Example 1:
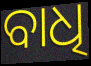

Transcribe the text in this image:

ବାଧି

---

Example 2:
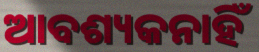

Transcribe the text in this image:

ଆବଶ୍ୟକନାହିଁ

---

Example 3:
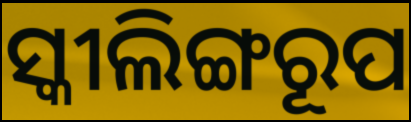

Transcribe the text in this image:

ସ୍କୀଲିଙ୍ଗରୂପ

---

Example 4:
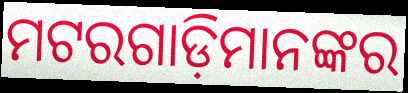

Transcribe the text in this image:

ମଟରଗାଡ଼ିମାନଙ୍କର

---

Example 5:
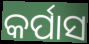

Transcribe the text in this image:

କର୍ପାସ